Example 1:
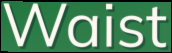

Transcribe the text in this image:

Waist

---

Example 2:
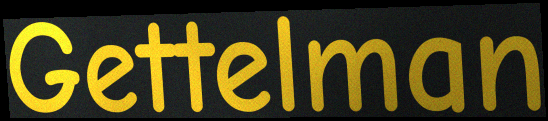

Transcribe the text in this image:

Gettelman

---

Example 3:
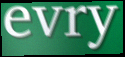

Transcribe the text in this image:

evry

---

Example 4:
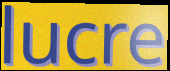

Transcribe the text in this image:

lucre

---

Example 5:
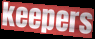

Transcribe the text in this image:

keepers